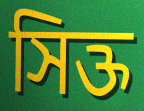
সিক্ত